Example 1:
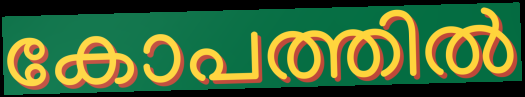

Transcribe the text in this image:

കോപത്തിൽ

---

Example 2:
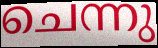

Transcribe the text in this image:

ചെന്നു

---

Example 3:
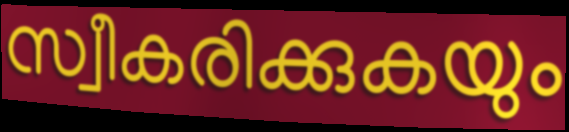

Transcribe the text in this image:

സ്വീകരിക്കുകയും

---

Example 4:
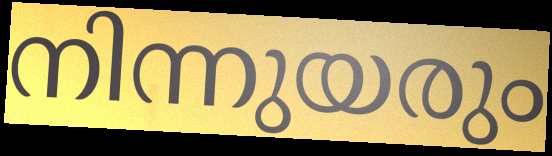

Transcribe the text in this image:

നിന്നുയരും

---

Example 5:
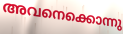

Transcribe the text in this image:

അവനെക്കൊന്നു